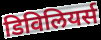
डिविलियर्स